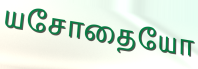
யசோதையோ